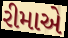
રીમાએ